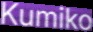
Kumiko